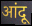
आंदू